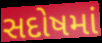
સદોષમાં